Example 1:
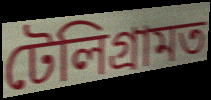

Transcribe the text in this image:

টেলিগ্ৰামত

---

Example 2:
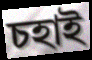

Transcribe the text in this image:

চহাই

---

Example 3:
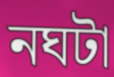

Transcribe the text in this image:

নঘটা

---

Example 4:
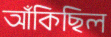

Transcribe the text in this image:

আঁকিছিল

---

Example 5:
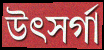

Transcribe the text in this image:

উৎসৰ্গা